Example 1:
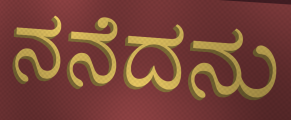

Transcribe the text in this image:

ನನೆದನು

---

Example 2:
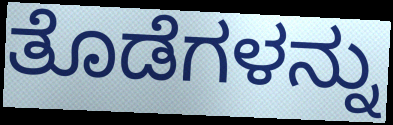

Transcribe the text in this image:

ತೊಡೆಗಳನ್ನು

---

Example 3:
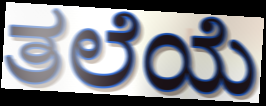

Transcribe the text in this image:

ತಲೆಯೆ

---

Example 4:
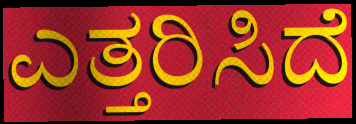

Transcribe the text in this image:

ಎತ್ತರಿಸಿದೆ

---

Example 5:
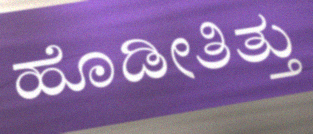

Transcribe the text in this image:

ಹೊಡೀತಿತ್ತು